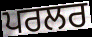
ਪਰਲਰ